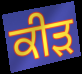
ਕੀੜ